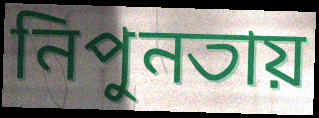
নিপুনতায়